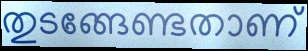
തുടങ്ങേണ്ടതാണ്